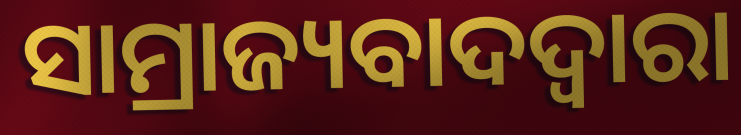
ସାମ୍ରାଜ୍ୟବାଦଦ୍ୱାରା